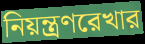
নিয়ন্ত্রণরেখার